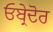
ਓਬ੍ਰੇਦੋਰ